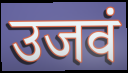
उजवं